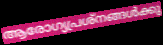
ആരോഗ്യപ്രശ്നങ്ങൾക്കു